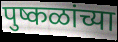
पुष्कळांच्या